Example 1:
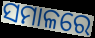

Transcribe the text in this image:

ସମାଳରେ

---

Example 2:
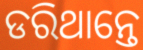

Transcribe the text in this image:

ଡରିଥାନ୍ତେ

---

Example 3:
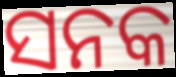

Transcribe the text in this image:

ସନକ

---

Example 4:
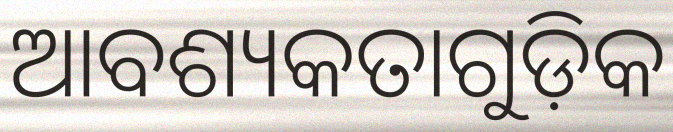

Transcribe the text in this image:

ଆବଶ୍ୟକତାଗୁଡ଼ିକ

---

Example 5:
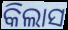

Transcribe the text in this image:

କିଲାସ